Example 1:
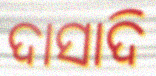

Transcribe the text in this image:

ଦାସାଦି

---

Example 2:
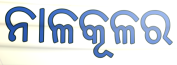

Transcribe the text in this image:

ନାଳକୂଳର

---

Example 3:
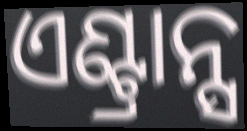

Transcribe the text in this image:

ଏଣ୍ଟ୍ରାନ୍ସ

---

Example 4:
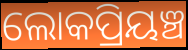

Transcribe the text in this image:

ଲୋକପ୍ରିୟଞ୍ଚ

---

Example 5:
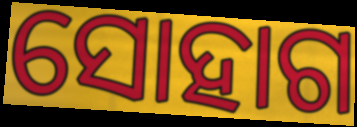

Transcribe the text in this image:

ସୋହାଗ